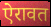
ऐरावत